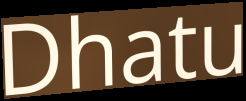
Dhatu